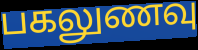
பகலுணவு